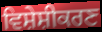
ਵਿਸ਼ੇਸ਼ੀਕਰਣ